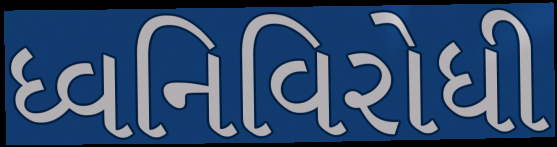
ધ્વનિવિરોધી